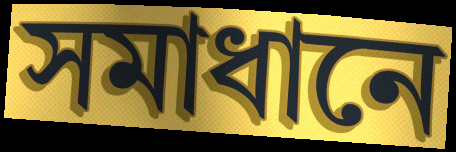
সমাধানে